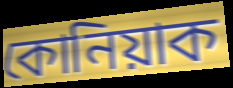
কোনিয়াক